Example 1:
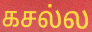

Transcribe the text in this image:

கசல்ல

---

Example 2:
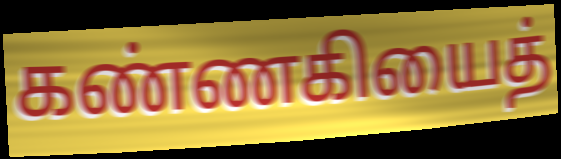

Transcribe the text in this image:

கண்ணகியைத்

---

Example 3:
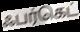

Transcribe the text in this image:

ஃபர்கெட்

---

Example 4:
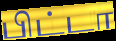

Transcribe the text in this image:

பிட்டா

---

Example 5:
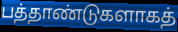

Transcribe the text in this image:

பத்தாண்டுகளாகத்